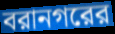
বরানগরের